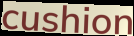
cushion